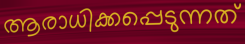
ആരാധിക്കപ്പെടുന്നത്